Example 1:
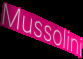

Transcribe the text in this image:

Mussolini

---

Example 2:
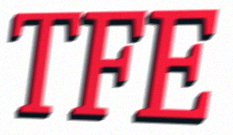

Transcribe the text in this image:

TFE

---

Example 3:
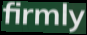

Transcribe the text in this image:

firmly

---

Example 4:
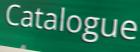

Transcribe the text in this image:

Catalogue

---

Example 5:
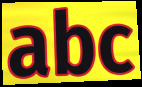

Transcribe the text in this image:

abc